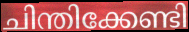
ചിന്തിക്കേണ്ടി